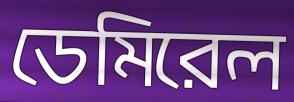
ডেমিরেল